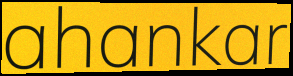
ahankar